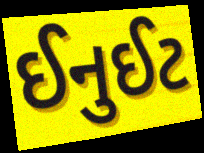
ઈનુઈટ